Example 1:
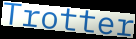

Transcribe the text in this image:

Trotter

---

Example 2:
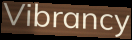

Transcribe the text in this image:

Vibrancy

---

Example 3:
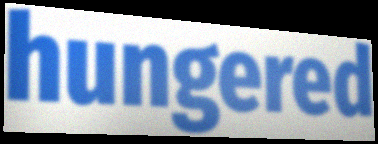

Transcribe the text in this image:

hungered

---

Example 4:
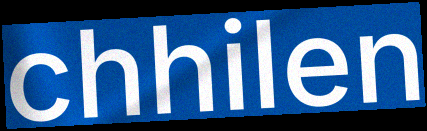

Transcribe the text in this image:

chhilen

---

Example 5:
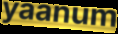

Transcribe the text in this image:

yaanum